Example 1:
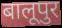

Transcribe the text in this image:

बालूपुर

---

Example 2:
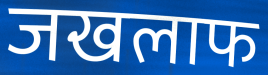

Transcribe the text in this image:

जखलाफ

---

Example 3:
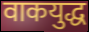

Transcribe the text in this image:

वाकयुद्ध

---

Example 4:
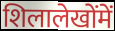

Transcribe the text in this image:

शिलालेखोंमें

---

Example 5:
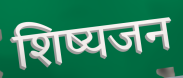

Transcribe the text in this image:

शिष्यजन